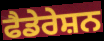
ਫੈਡੇਰੇਸ਼ਨ